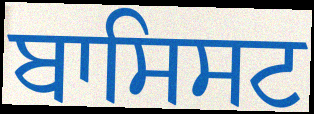
ਬਾਸਿਸਟ